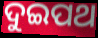
ଦୁଇପଥ